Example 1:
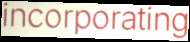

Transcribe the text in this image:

incorporating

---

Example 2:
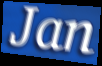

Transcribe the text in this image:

Jan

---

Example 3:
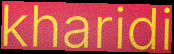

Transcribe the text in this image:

kharidi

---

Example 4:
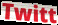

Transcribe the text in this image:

Twitt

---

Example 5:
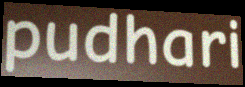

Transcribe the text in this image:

pudhari